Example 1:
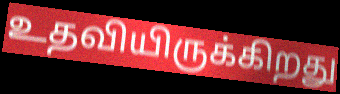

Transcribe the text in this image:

உதவியிருக்கிறது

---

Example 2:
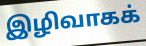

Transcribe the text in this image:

இழிவாகக்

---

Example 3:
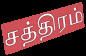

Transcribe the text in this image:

சத்திரம்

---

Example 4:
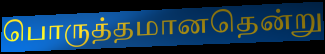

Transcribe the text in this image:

பொருத்தமானதென்று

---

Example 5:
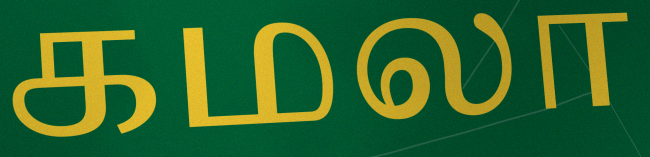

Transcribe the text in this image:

கமலா